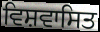
ਵਿਸ਼ਵਾਸਿਤ